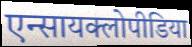
एन्सायक्लोपीडिया